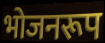
भोजनरूप